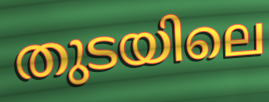
തുടയിലെ